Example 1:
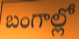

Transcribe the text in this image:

బంగాల్లో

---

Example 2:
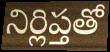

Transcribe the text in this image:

నిర్లిప్తతో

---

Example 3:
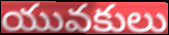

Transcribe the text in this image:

యువకులు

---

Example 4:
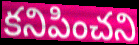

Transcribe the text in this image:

కనిపించని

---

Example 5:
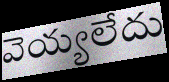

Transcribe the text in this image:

వెయ్యలేదు